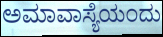
ಅಮಾವಾಸ್ಯೆಯಂದು